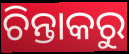
ଚିନ୍ତାକରୁ